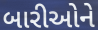
બારીઓને